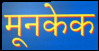
मूनकेक